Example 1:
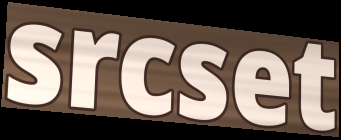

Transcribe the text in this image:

srcset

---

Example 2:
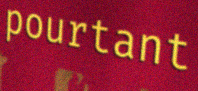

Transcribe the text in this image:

pourtant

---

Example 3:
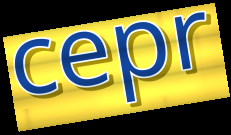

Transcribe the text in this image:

cepr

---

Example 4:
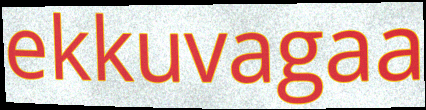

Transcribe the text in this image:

ekkuvagaa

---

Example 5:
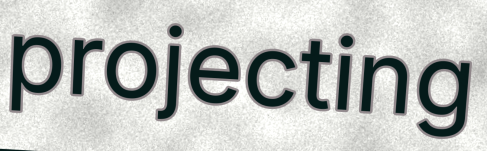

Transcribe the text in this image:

projecting